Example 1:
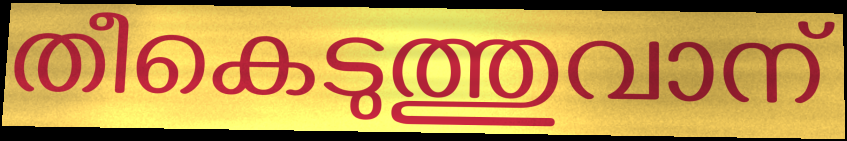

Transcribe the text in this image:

തീകെടുത്തുവാന്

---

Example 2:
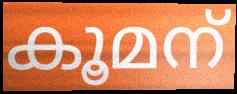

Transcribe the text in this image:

കൂമന്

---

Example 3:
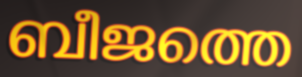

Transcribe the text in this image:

ബീജത്തെ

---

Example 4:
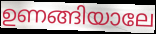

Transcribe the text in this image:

ഉണങ്ങിയാലേ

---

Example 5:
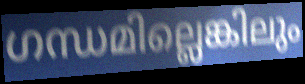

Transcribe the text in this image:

ഗന്ധമില്ലെങ്കിലും